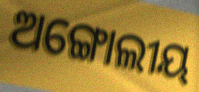
ଅଙ୍ଗୋଲୀୟ